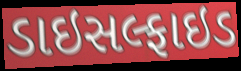
ડાઇસલ્ફાઇડ